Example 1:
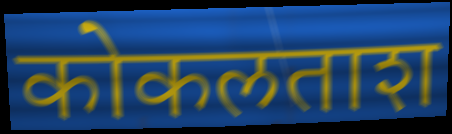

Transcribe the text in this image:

कोकलताश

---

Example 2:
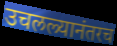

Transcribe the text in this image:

उचलल्यानंतरच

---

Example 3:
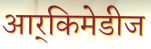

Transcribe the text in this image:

आर्किमेडीज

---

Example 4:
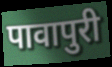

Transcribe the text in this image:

पावापुरी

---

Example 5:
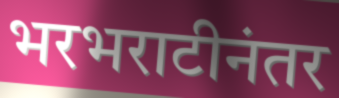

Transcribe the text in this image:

भरभराटीनंतर